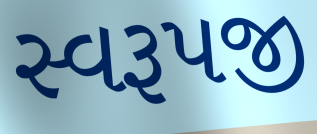
સ્વરૂપજી